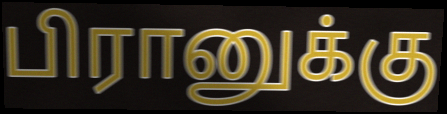
பிரானுக்கு